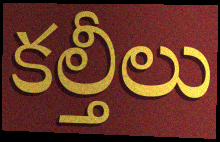
కల్తీలు